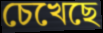
চেখেছে